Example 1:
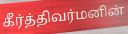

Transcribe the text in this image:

கீர்த்திவர்மனின்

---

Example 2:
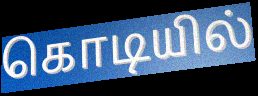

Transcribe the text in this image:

கொடியில்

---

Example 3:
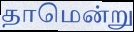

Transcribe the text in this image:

தாமென்று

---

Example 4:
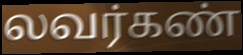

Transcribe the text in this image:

லவர்கண்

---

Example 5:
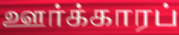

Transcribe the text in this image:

ஊர்க்காரப்